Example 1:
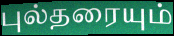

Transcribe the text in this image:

புல்தரையும்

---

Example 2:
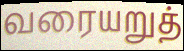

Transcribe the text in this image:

வரையறுத்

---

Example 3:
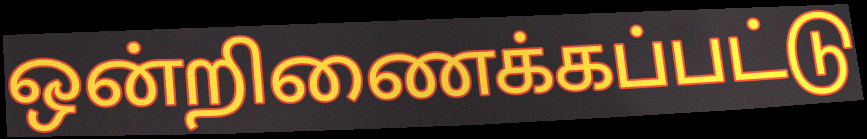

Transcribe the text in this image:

ஒன்றிணைக்கப்பட்டு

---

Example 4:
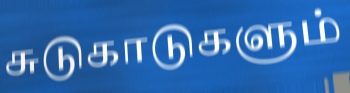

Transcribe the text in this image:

சுடுகாடுகளும்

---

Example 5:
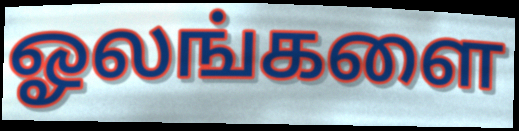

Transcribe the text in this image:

ஓலங்களை